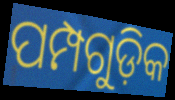
ପମ୍ପଗୁଡ଼ିକ